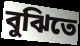
বুঝিতে